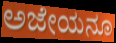
ಅಜೇಯನೂ